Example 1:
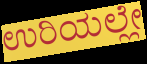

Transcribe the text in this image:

ಉರಿಯಲ್ಲೇ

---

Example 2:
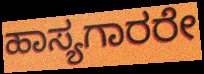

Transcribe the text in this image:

ಹಾಸ್ಯಗಾರರೇ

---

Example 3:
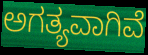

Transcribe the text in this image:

ಅಗತ್ಯವಾಗಿವೆ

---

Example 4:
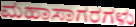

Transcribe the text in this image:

ಮಹಾಸಾಗರಗಳು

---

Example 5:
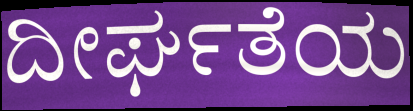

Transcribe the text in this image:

ದೀರ್ಘತೆಯ